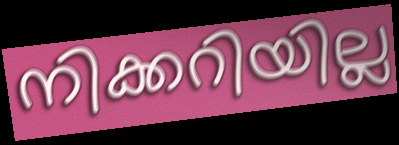
നിക്കറിയില്ല